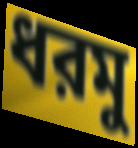
ধরমু